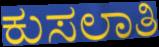
ಕುಸಲಾತಿ